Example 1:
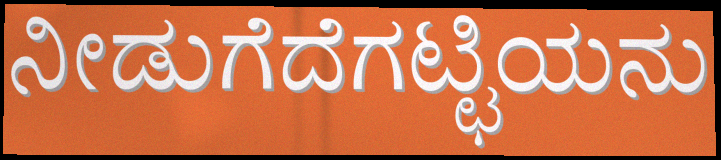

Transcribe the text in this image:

ನೀಡುಗೆದೆಗಟ್ಟಿಯನು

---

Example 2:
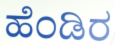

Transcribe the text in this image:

ಹೆಂಡಿರ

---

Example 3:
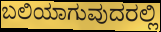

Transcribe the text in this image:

ಬಲಿಯಾಗುವುದರಲ್ಲಿ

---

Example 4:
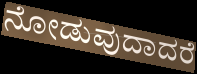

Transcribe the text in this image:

ನೋಡುವುದಾದರೆ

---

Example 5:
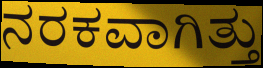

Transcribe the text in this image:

ನರಕವಾಗಿತ್ತು